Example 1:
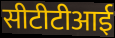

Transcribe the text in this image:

सीटीटीआई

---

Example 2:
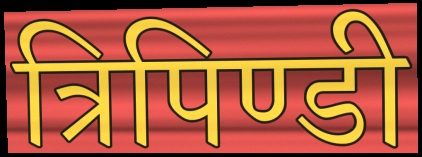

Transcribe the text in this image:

त्रिपिण्डी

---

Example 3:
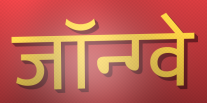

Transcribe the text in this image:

जॉन्ग्वे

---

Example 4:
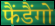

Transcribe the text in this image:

फैंडैंगो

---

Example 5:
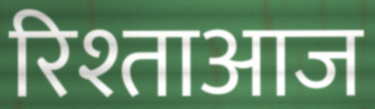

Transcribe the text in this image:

रिश्ताआज